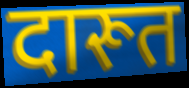
दारूत